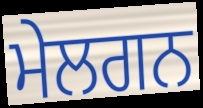
ਮੇਲਗਨ